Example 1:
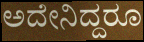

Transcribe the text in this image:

ಅದೇನಿದ್ದರೂ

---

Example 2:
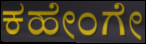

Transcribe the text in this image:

ಕಹೇಂಗೇ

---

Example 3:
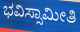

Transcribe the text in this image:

ಭವಿಸ್ಸಾಮೀತಿ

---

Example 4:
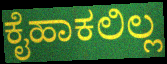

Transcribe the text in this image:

ಕೈಹಾಕಲಿಲ್ಲ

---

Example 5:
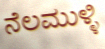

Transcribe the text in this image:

ನೆಲಮುಳ್ಳಿ